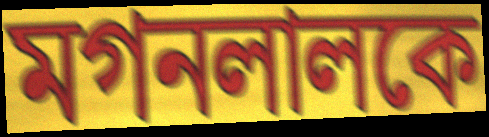
মগনলালকে